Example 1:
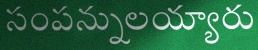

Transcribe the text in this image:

సంపన్నులయ్యారు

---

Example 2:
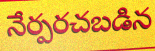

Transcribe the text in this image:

నేర్పరచబడిన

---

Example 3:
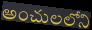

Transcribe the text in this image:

అంచులలోని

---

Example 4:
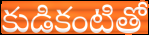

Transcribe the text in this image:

కుడికంటితో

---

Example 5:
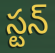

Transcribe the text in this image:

స్టన్